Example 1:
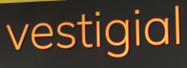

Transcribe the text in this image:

vestigial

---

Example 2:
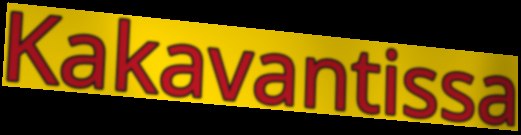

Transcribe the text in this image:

Kakavantissa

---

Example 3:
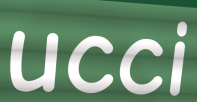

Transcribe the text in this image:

ucci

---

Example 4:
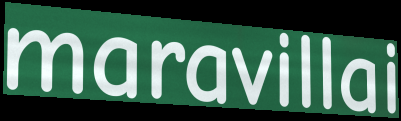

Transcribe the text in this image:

maravillai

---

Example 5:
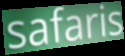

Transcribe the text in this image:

safaris